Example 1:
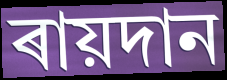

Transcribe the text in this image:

ৰায়দান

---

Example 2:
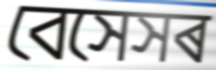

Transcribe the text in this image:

বেসেসৰ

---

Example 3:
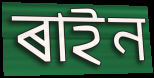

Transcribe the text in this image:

ৰাইন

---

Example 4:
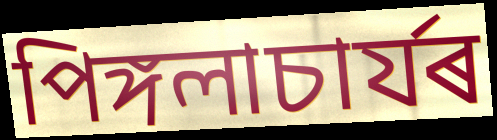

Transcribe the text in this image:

পিঙ্গলাচাৰ্যৰ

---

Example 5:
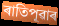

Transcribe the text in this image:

ৰাতিপূৱাৰ